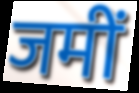
जमीं